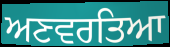
ਅਣਵਰਤਿਆ